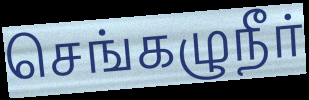
செங்கழுநீர்